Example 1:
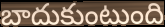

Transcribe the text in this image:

బాదుకుంటుంది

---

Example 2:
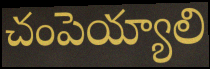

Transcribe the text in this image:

చంపెయ్యాలి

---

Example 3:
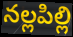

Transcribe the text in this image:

నల్లపిల్లి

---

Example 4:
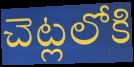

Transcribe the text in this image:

చెట్లలోకి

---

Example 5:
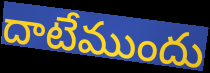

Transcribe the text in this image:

దాటేముందు